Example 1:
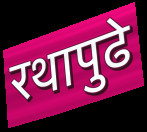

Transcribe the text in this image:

रथापुढे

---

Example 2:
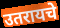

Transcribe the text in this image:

उतरायचे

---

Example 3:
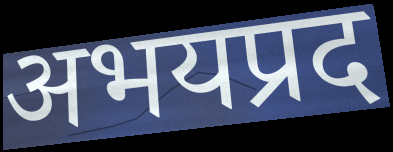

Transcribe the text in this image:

अभयप्रद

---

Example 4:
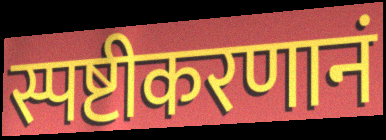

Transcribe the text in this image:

स्पष्टीकरणानं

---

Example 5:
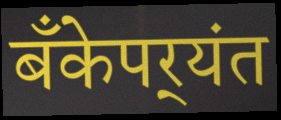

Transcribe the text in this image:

बॅंकेपर्यंत